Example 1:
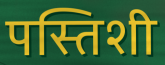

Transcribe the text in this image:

पस्तिशी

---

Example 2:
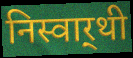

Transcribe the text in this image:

निस्वार्थी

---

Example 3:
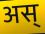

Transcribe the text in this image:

अस्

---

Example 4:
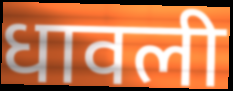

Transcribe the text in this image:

धावली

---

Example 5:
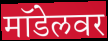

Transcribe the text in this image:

मॉडेलवर